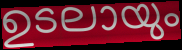
ഉടലായും